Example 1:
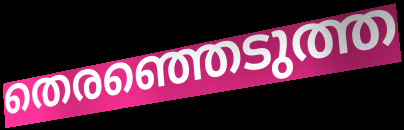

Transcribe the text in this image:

തെരഞ്ഞെടുത്ത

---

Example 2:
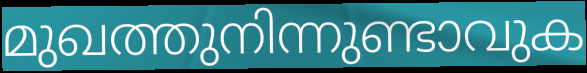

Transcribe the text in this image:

മുഖത്തുനിന്നുണ്ടാവുക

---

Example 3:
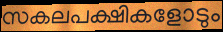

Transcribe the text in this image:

സകലപക്ഷികളോടും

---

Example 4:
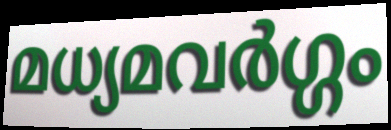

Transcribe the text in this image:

മധ്യമവർഗ്ഗം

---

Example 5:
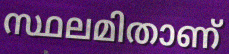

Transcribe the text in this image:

സ്ഥലമിതാണ്